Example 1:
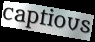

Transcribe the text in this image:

captious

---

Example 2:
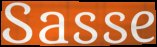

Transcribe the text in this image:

Sasse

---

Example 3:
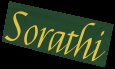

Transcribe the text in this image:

Sorathi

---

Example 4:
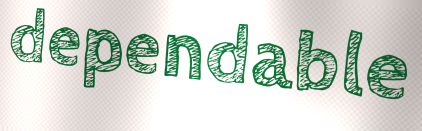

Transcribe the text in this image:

dependable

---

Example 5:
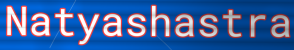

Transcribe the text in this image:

Natyashastra